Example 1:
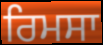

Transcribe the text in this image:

ਰਿਮਸਾ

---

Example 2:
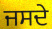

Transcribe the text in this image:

ਜਸਦੇ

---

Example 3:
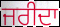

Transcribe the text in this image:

ਜਰੀਦਾ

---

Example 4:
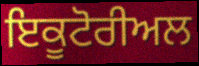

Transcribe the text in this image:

ਇਕੂਟੋਰੀਅਲ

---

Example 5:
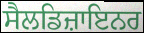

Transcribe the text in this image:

ਸੈਲਡਿਜ਼ਾਇਨਰ